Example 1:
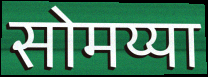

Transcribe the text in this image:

सोमय्या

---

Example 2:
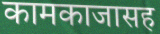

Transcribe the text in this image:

कामकाजासह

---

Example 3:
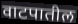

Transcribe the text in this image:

वाटपातील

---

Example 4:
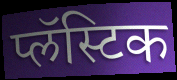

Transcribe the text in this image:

प्लॅस्टिक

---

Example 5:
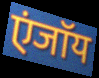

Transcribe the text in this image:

एंजॉय